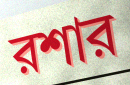
রশার